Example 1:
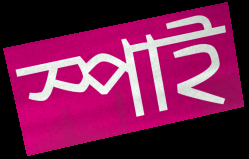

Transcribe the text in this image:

স্পাই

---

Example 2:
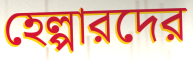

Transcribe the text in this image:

হেল্পারদের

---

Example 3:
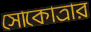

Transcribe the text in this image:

সোকোত্রার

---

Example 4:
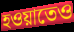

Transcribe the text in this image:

হওয়াতেও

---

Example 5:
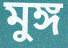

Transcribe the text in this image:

মুঙ্গ